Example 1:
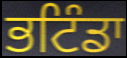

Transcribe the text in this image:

ਭਟਿੰਡਾ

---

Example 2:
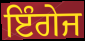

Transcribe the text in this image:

ਇੰਗੇਜ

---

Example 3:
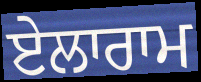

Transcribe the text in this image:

ਏਲਾਰਾਮ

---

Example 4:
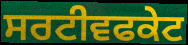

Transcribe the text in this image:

ਸਰਟੀਵਫਕੇਟ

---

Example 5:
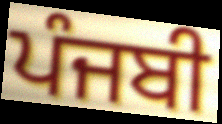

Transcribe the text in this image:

ਪੰਜਬੀ